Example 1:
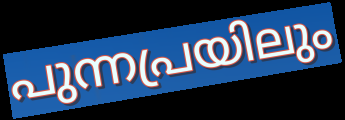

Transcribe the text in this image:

പുന്നപ്രയിലും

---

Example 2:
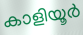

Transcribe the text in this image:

കാളിയൂർ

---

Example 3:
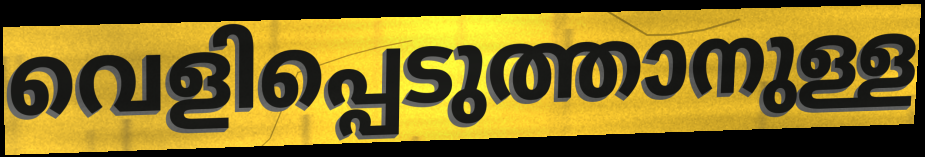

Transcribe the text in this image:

വെളിപ്പെടുത്താനുള്ള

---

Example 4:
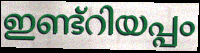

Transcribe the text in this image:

ഇണ്ട്റിയപ്പം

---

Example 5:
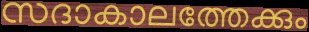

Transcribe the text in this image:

സദാകാലത്തേക്കും